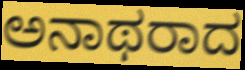
ಅನಾಥರಾದ